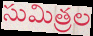
సుమిత్రల